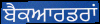
ਬੈਕਆਰਡਰਾਂ